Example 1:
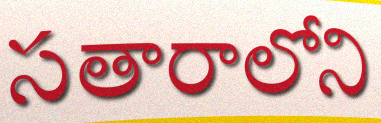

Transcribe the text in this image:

సతారాలోని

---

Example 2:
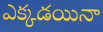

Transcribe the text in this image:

ఎక్కడయినా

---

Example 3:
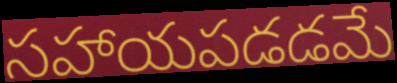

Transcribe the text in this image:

సహాయపడడమే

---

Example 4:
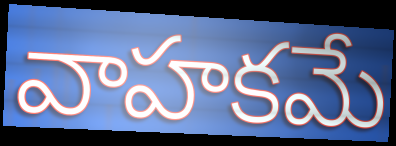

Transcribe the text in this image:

వాహకమే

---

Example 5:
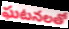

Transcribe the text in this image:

ఘటనలతో